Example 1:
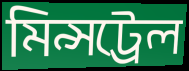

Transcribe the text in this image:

মিন্সট্রেল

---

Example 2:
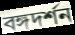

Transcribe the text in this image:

বঙ্গদর্শন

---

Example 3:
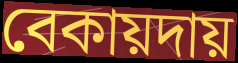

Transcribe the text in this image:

বেকায়দায়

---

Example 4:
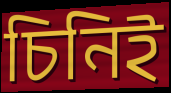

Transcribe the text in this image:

চিনিই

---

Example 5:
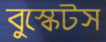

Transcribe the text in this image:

বুস্কেটস